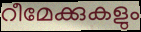
റീമേക്കുകളും